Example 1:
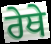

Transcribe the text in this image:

ਰੇਥੇ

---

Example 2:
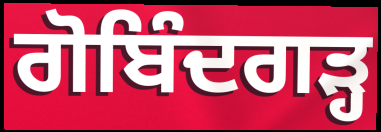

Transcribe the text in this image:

ਗੋਬਿੰਦਗੜ੍ਹ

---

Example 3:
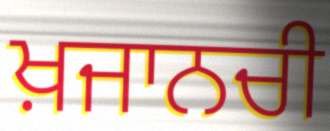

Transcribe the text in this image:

ਖ਼ਜਾਨਚੀ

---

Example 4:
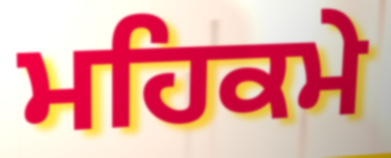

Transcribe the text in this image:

ਮਹਿਕਮੇ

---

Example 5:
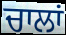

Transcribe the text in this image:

ਚਾਲਾਂ